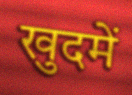
खुदमें